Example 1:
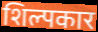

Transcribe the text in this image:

शिल्पकार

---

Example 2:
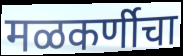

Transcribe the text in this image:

मळकर्णीचा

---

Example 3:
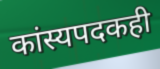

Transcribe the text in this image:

कांस्यपदकही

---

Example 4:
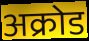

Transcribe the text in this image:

अक्रोड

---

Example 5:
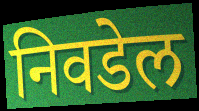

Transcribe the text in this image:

निवडेल